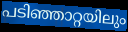
പടിഞ്ഞാറ്റയിലും